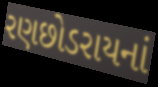
રણછોડરાયનાં